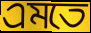
এমতে